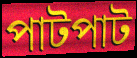
পাটপাট